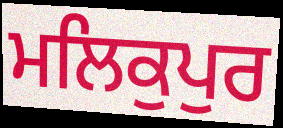
ਮਲਿਕੁਪੁਰ